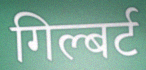
गिल्बर्ट